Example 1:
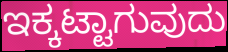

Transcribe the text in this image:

ಇಕ್ಕಟ್ಟಾಗುವುದು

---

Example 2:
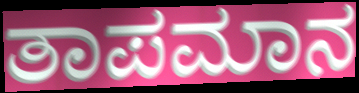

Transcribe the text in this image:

ತಾಪಮಾನ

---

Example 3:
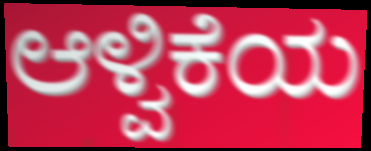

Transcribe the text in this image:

ಆಳ್ವಿಕೆಯ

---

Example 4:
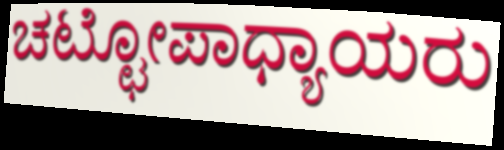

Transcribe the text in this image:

ಚಟ್ಟೋಪಾಧ್ಯಾಯರು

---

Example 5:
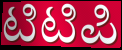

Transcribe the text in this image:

ಟಿಟಿಪಿ